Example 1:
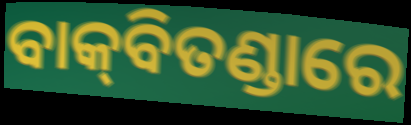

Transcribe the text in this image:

ବାକ୍‌ବିତଣ୍ଡାରେ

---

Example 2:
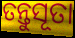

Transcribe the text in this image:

ତନ୍ତୁସୂତା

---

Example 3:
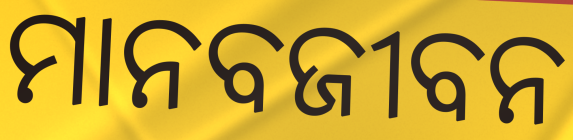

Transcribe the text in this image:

ମାନବଜୀବନ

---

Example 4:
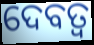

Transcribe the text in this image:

ଦେବତ୍ୱ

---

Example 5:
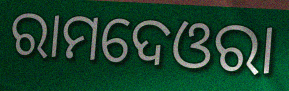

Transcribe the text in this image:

ରାମଦେଓରା